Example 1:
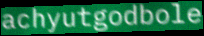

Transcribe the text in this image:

achyutgodbole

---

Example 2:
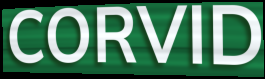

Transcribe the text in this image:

CORVID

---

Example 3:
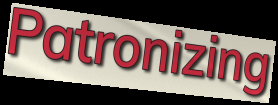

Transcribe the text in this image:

Patronizing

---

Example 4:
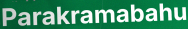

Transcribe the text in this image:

Parakramabahu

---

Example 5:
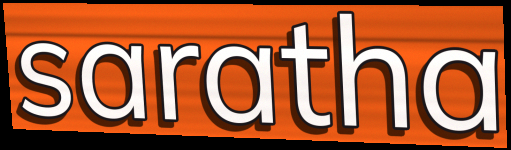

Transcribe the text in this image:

saratha